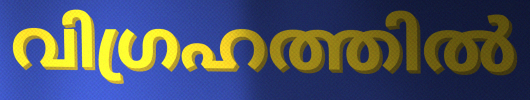
വിഗ്രഹത്തിൽ